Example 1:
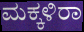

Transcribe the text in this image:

ಮಕ್ಕಳಿರಾ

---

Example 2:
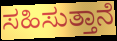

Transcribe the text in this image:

ಸಹಿಸುತ್ತಾನೆ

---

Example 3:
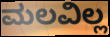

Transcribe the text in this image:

ಮಲವಿಲ್ಲ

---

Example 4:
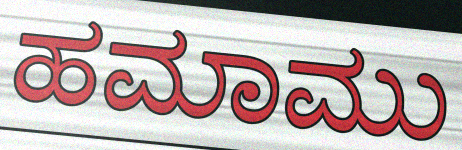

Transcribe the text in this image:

ಹಮಾಮು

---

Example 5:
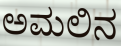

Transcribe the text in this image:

ಅಮಲಿನ